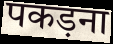
पकड़ना